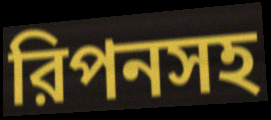
রিপনসহ